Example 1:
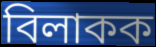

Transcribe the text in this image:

বিলাকক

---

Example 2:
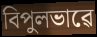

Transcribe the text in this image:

বিপুলভাৱে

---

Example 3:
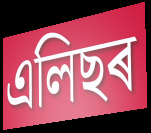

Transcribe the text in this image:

এলিছৰ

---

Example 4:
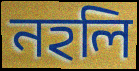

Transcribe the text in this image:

নহলি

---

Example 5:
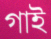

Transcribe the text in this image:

গাই